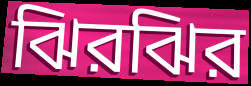
ঝিরঝির